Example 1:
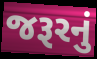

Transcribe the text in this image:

જરૂરનું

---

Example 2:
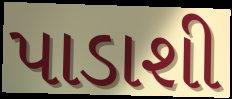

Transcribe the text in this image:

પાડાશી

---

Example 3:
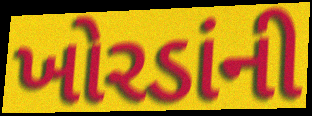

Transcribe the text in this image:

ખોરડાંની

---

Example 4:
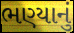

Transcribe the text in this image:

ભણ્યાનું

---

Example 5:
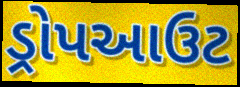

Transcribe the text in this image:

ડ્રોપઆઉટ